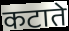
कटाते